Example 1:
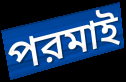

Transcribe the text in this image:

পরমাই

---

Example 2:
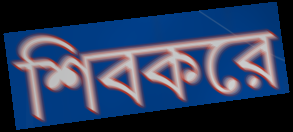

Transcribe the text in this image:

শিবকরে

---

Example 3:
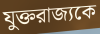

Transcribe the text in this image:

যুক্তরাজ্যকে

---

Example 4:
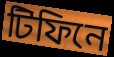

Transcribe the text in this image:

টিফিনে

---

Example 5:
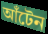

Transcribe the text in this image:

আঁটেন